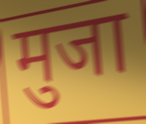
मुजा